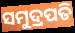
ସମୁଦ୍ରପତି